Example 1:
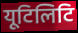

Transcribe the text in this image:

यूटिलिटि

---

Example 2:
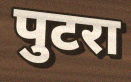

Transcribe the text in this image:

पुटरा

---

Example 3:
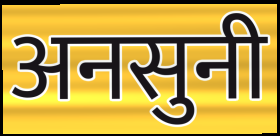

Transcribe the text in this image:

अनसुनी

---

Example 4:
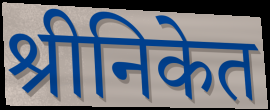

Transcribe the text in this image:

श्रीनिकेत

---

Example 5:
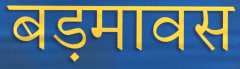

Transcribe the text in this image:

बड़मावस